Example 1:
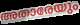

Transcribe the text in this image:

അതാരേയും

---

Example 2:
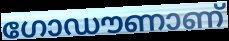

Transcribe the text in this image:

ഗോഡൗണാണ്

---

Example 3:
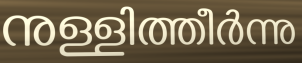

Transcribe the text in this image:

നുള്ളിത്തീർന്നു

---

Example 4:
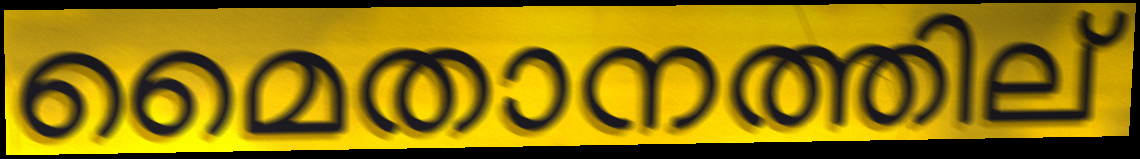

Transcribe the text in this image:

മൈതാനത്തില്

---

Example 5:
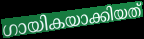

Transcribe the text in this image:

ഗായികയാക്കിയത്